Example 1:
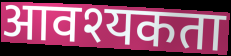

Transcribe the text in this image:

आवश्यकता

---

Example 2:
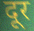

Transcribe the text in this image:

दूर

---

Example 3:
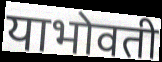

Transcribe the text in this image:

याभोवती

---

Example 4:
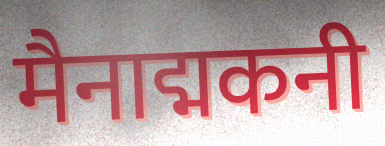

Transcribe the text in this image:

मैनाद्मकनी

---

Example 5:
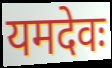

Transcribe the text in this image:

यमदेवः